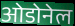
ओडोनेल